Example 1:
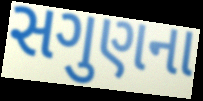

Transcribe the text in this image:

સગુણના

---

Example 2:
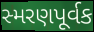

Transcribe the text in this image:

સ્મરણપૂર્વક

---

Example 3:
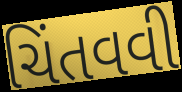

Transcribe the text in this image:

ચિંતવવી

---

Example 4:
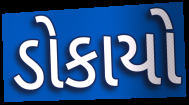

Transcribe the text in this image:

ડોકાયો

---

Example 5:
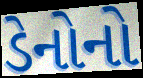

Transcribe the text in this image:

ડેનોનો